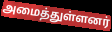
அமைத்துள்ளனர்